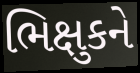
ભિક્ષુકને